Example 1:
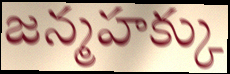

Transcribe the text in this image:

జన్మహక్కు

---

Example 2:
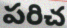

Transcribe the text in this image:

పరిచ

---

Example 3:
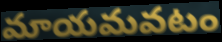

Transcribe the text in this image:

మాయమవటం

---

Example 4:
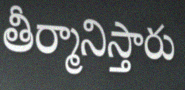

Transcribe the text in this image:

తీర్మానిస్తారు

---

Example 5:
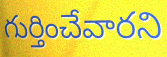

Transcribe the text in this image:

గుర్తించేవారని